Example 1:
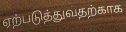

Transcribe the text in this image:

ஏற்படுத்துவதற்காக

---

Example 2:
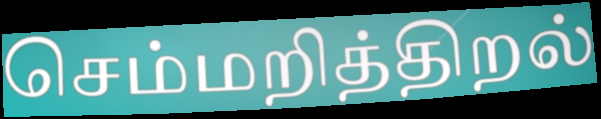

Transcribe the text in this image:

செம்மறித்திறல்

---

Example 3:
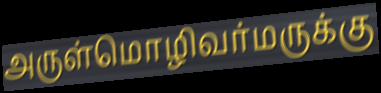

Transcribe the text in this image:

அருள்மொழிவர்மருக்கு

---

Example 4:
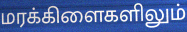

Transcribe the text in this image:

மரக்கிளைகளிலும்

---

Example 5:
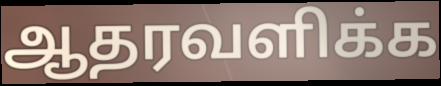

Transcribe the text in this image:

ஆதரவளிக்க